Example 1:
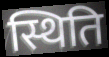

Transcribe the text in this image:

स्थिति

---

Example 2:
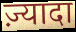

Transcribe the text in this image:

ज़्यादा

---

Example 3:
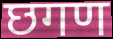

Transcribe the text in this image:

छगण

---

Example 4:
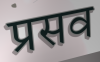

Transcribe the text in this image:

प्रसव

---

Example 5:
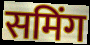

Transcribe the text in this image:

समिंग